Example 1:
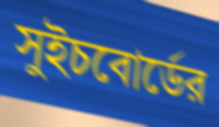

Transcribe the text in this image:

সুইচবোর্ডের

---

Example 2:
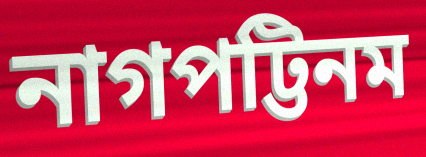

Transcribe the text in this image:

নাগপট্টিনম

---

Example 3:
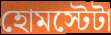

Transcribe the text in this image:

হোমস্টেটা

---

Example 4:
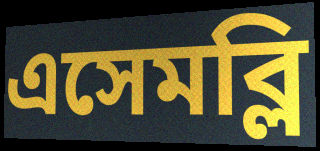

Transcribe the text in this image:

এসেমব্লি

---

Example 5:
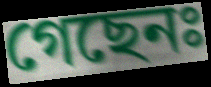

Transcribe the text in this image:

গেছেনঃ